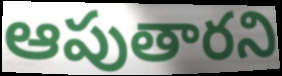
ఆపుతారని